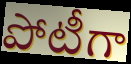
పోటీగా